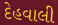
દેહવાલી